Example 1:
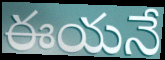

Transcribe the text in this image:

ఈయనే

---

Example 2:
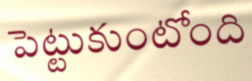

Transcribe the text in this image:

పెట్టుకుంటోంది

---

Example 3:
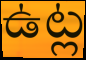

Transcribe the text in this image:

ఉట్ల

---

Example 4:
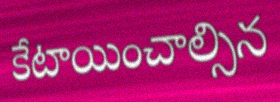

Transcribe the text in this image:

కేటాయించాల్సిన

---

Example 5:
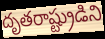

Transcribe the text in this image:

దృతరాష్ట్రుడిని